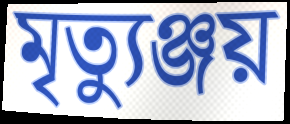
মৃত্যুঞ্জয়